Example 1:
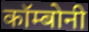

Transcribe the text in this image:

कॉम्बोनी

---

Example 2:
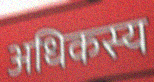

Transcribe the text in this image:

अधिकस्य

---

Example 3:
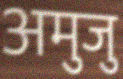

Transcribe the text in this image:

अमुजु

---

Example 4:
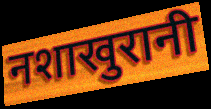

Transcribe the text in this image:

नशाखुरानी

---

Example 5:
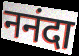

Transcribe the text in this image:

ननंदा